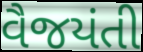
વૈજયંતી